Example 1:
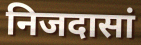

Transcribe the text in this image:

निजदासां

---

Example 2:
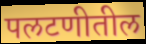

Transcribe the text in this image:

पलटणीतील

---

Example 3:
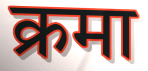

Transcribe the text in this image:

क्रमा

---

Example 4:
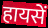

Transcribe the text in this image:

हायसें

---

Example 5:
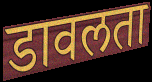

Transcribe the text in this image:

डावलता